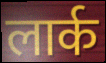
लार्क